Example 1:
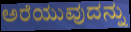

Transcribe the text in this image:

ಅರೆಯುವುದನ್ನು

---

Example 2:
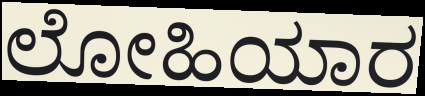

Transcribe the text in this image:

ಲೋಹಿಯಾರ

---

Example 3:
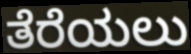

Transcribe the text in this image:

ತೆರೆಯಲು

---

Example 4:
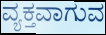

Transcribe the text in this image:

ವ್ಯಕ್ತವಾಗುವ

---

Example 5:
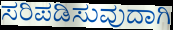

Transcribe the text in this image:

ಸರಿಪಡಿಸುವುದಾಗಿ